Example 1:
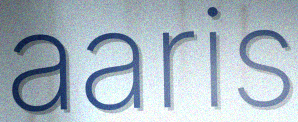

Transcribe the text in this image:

aaris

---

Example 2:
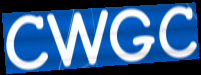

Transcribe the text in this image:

CWGC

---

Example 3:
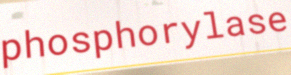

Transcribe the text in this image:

phosphorylase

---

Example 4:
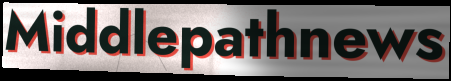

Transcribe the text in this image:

Middlepathnews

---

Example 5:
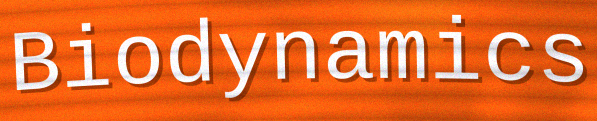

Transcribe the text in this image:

Biodynamics